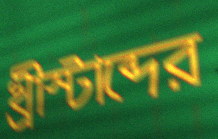
খ্রীস্টাব্দের